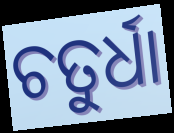
ଚତୁର୍ଧା